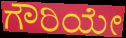
ಗೌರಿಯೇ